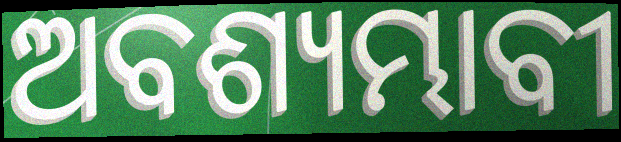
ଅବଶ୍ୟମ୍ଭାବୀ